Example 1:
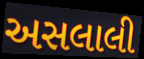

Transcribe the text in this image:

અસલાલી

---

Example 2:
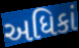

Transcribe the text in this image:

અધિકાં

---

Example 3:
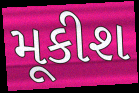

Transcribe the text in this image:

મૂકીશ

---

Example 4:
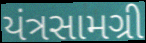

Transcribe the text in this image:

યંત્રસામગ્રી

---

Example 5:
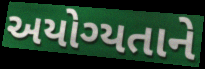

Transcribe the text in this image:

અયોગ્યતાને